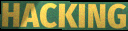
HACKING